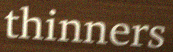
thinners